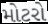
મોટરો